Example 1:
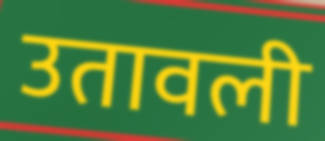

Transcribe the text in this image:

उतावली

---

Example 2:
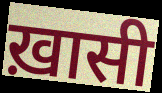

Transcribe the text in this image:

ख़ासी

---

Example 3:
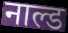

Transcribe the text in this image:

नाल्ड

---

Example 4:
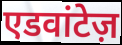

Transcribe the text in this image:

एडवांटेज़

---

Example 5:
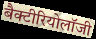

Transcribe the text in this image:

बैक्टीरियोलॉजी